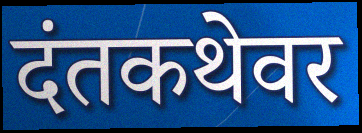
दंतकथेवर